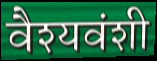
वैश्यवंशी